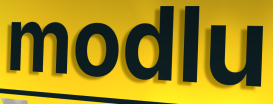
modlu